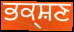
ਭਕ੍ਸ਼ਣ